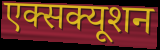
एक्सक्यूशन